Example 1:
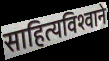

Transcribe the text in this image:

साहित्यविश्वाने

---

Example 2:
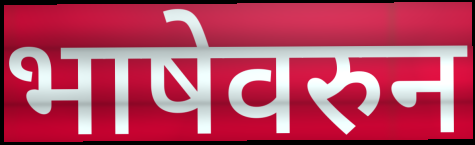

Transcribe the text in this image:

भाषेवरुन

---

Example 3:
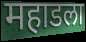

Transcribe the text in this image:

महाडला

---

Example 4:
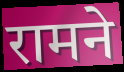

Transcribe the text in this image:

रामने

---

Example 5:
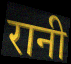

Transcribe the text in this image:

रानी